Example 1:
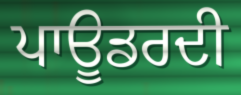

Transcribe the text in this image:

ਪਾਊਡਰਦੀ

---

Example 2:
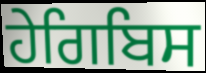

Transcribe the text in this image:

ਹੇਗਿਬਿਸ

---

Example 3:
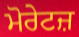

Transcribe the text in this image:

ਮੋਰੇਟਜ਼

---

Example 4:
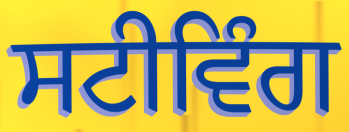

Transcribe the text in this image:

ਸਟੀਵਿੰਗ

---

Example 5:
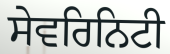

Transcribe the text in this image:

ਸੇਵਰਿਨਿਟੀ